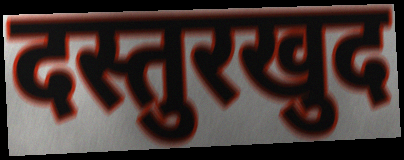
दस्तुरखुद